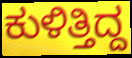
ಕುಳಿತ್ತಿದ್ದ